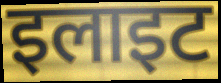
इलाइट